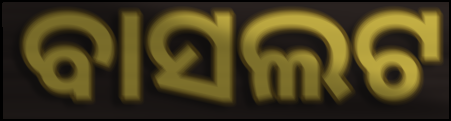
ବାସଲଟ